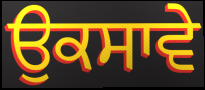
ਉਕਸਾਵੇ